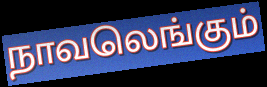
நாவலெங்கும்